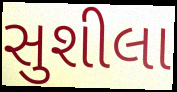
સુશીલા